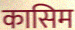
कासिम